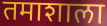
तमाशाला